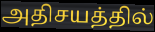
அதிசயத்தில்